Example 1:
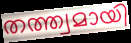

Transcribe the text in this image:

തത്ത്വമായി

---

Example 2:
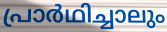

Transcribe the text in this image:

പ്രാർഥിച്ചാലും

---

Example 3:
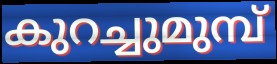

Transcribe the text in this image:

കുറച്ചുമുമ്പ്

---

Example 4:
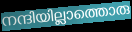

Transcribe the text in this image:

നന്ദിയില്ലാത്തൊരു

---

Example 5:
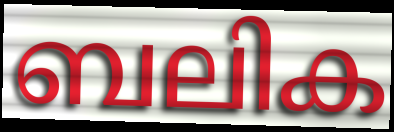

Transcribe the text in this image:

ബലിക